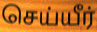
செய்யீர்